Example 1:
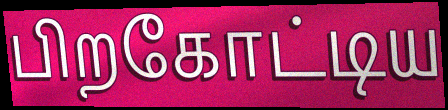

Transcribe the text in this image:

பிறகோட்டிய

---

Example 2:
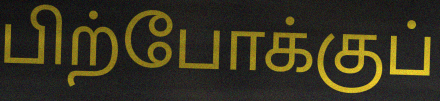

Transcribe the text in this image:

பிற்போக்குப்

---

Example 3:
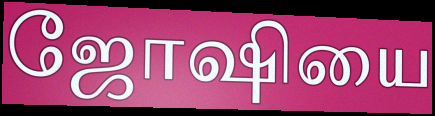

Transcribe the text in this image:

ஜோஷியை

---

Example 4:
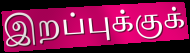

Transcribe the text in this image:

இறப்புக்குக்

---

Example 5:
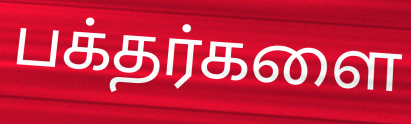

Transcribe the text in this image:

பக்தர்களை